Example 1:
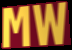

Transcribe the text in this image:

MW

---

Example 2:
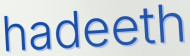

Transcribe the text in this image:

hadeeth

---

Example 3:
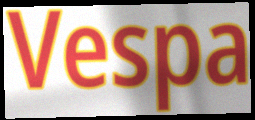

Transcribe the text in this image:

Vespa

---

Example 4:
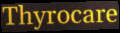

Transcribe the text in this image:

Thyrocare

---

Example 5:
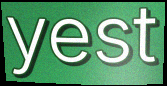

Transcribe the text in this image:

yest